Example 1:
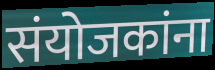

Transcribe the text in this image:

संयोजकांना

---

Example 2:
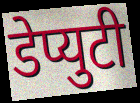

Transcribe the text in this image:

डेप्युटी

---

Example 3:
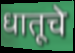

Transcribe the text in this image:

धातूचे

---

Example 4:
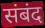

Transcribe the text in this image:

संबंद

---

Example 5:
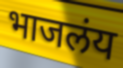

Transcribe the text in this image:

भाजलंय